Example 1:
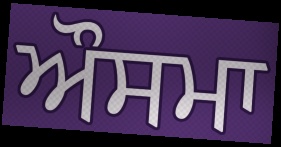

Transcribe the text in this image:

ਔਸਮਾ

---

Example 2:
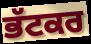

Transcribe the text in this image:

ਭੱਟਕਰ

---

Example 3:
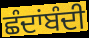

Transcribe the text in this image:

ਛੰਦਾਂਬੰਦੀ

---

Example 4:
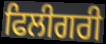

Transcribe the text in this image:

ਫਿਲੀਗਰੀ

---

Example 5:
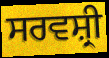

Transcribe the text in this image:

ਸਰਵਸ਼੍ਰੀ